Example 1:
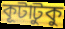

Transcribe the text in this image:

কূটাটুকু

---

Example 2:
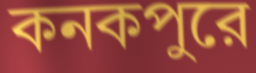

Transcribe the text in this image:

কনকপুরে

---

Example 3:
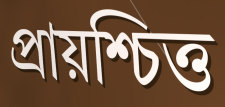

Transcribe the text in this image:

প্রায়শ্চিত্ত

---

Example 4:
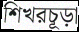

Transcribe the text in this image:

শিখরচূড়া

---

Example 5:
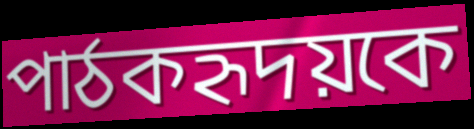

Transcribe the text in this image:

পাঠকহৃদয়কে